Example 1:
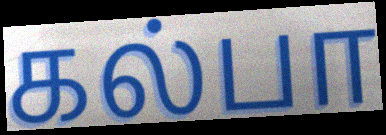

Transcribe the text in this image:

கல்பா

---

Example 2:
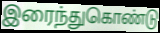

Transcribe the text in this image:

இரைந்துகொண்டு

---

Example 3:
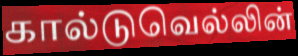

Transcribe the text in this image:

கால்டுவெல்லின்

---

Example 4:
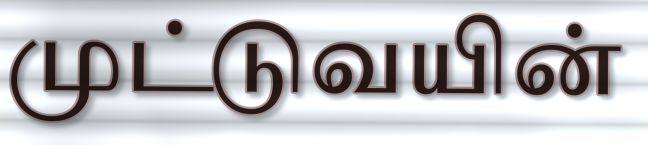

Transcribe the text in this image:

முட்டுவயின்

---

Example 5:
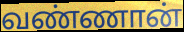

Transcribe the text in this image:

வண்ணான்